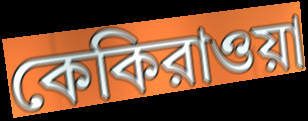
কেকিরাওয়া